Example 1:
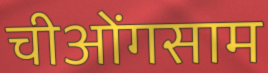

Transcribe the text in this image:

चीओंगसाम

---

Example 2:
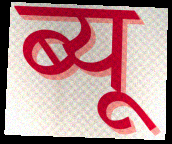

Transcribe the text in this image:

ब्यू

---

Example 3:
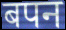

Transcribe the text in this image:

बपन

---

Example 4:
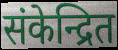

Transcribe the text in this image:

संकेन्द्रित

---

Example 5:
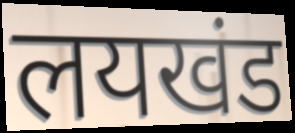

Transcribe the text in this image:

लयखंड